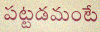
పట్టడమంటే